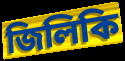
জিলিকি